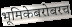
भूमिकेबरोबरच